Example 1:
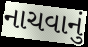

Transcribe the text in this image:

નાચવાનું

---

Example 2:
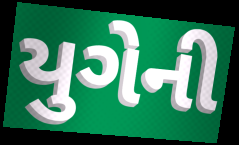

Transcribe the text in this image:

યુગેની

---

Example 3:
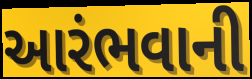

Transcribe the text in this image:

આરંભવાની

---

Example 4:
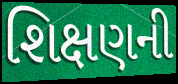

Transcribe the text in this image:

શિક્ષણની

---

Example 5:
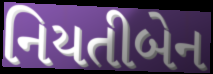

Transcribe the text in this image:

નિયતીબેન